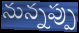
నున్నప్పు